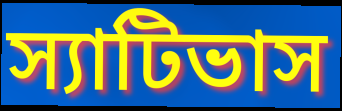
স্যাটিভাস